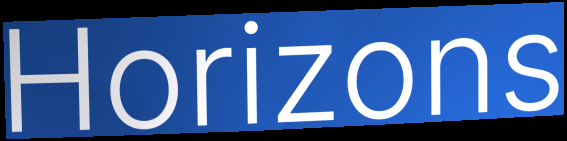
Horizons